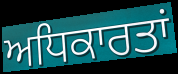
ਅਧਿਕਾਰਤਾਂ